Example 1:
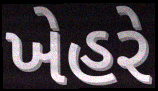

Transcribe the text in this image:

ખેહરે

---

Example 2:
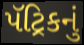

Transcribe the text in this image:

પૅટ્રિકનું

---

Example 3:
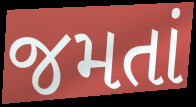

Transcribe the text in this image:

જમતાં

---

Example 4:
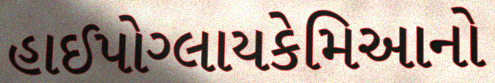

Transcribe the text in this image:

હાઈપોગ્લાયકેમિઆનો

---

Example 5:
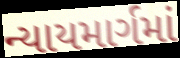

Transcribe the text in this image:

ન્યાયમાર્ગમાં